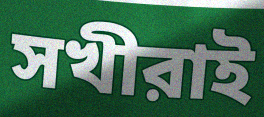
সখীরাই